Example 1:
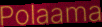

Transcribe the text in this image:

Polaama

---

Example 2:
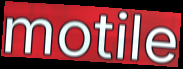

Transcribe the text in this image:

motile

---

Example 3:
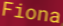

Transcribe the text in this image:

Fiona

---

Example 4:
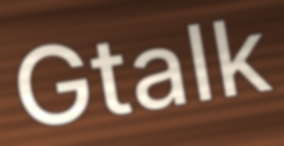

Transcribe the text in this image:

Gtalk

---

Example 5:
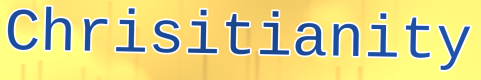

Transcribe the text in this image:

Chrisitianity